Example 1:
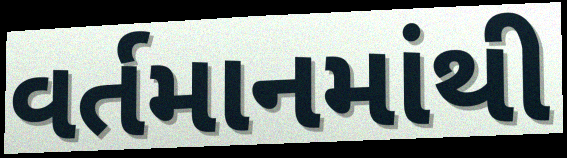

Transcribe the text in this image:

વર્તમાનમાંથી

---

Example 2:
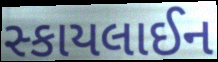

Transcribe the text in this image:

સ્કાયલાઈન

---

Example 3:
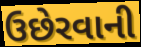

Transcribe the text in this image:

ઉછેરવાની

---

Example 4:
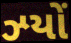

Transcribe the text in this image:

ઝ્યોં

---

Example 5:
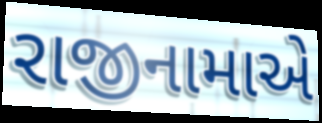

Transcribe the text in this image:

રાજીનામાએ